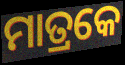
ମାତ୍ରକେ